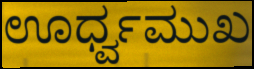
ಊರ್ಧ್ವಮುಖ